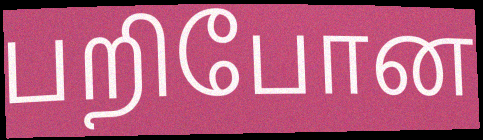
பறிபோன